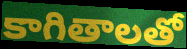
కాగితాలతో